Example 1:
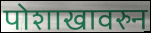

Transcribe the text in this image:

पोशाखावरुन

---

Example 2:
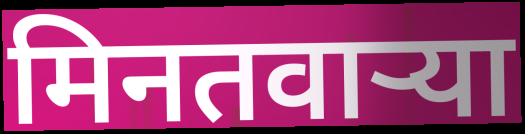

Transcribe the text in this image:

मिनतवार्‍या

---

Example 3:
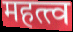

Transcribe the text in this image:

महत्‍त्‍व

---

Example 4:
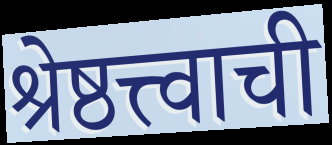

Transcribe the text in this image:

श्रेष्ठत्त्वाची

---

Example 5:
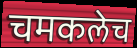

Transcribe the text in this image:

चमकलेच